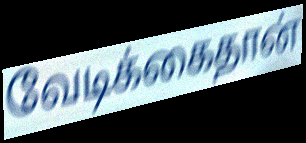
வேடிக்கைதான்